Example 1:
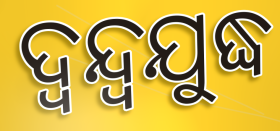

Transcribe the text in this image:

ଦ୍ୱନ୍ଦ୍ୱଯୁଦ୍ଧ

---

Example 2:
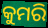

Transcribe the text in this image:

କୁମରି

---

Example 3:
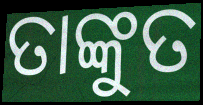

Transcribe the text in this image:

ତାଙ୍କୁତ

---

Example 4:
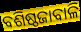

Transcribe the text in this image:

ବଶିଷ୍ଠଜାବାଳି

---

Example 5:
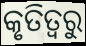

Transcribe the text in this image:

କୃତିତ୍ଵରୁ